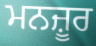
ਮਨਜ਼ੂਰ